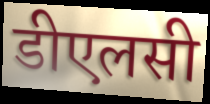
डीएलसी